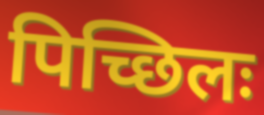
पिच्छिलः